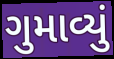
ગુમાવ્યું